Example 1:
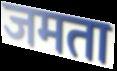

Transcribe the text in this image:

जमता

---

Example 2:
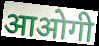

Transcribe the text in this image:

आओगी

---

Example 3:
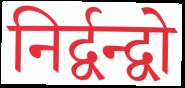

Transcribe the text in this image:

निर्द्वन्द्वो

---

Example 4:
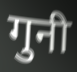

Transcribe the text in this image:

गुनी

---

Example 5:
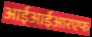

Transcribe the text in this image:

आईआईआरएफ